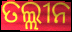
ତଲ୍ଲୀନ